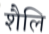
शैलि